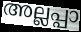
അല്ലപ്പാ